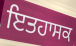
ਇਤਹਾਸਕ